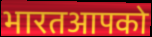
भारतआपको